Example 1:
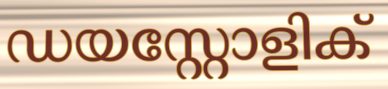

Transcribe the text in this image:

ഡയസ്റ്റോളിക്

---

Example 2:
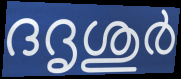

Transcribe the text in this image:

ദദൃശുർ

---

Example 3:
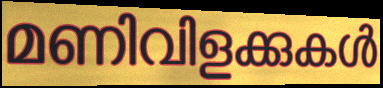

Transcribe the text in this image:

മണിവിളക്കുകൾ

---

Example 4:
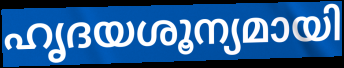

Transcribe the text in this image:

ഹൃദയശൂന്യമായി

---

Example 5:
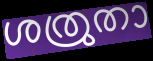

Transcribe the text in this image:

ശത്രുതാ